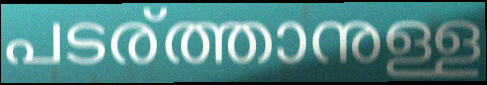
പടര്ത്താനുള്ള